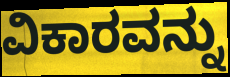
ವಿಕಾರವನ್ನು